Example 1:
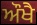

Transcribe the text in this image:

ਔਖੈ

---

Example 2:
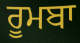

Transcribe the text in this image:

ਰੂਮਬਾ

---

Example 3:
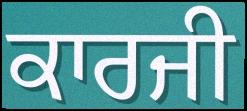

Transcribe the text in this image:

ਕਾਰਜੀ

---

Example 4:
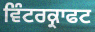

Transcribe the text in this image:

ਵਿੰਟਰਕ੍ਰਾਫਟ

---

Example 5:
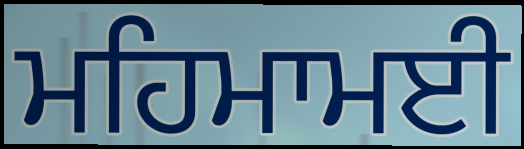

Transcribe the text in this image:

ਮਹਿਮਾਮਈ